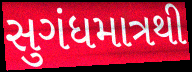
સુગંધમાત્રથી